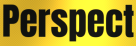
Perspect